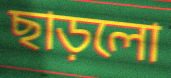
ছাড়লো